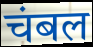
चंबल